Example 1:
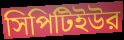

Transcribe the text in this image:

সিপিটিইউর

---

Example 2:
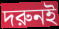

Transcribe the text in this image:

দরুনই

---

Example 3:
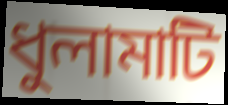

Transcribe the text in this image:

ধুলামাটি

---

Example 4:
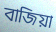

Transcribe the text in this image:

বাজিয়া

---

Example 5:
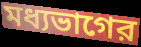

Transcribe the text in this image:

মধ্যভাগের